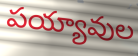
పయ్యావుల